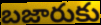
బజారుకు